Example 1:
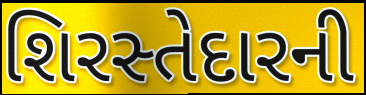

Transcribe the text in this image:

શિરસ્તેદારની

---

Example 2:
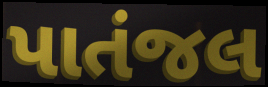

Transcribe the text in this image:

પાતંજલ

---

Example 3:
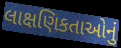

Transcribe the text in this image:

લાક્ષણિકતાઓનું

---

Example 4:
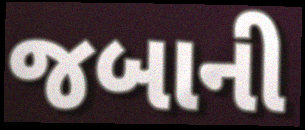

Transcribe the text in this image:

જબાની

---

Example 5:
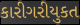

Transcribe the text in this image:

કારીગરીયુકત